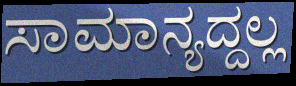
ಸಾಮಾನ್ಯದ್ದಲ್ಲ